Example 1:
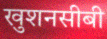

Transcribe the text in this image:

खुशनसीबी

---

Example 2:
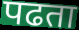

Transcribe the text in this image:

पढता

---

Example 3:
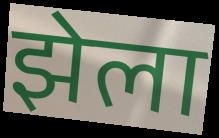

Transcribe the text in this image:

झेला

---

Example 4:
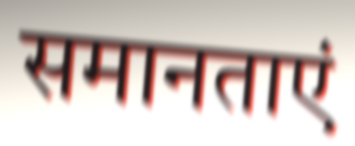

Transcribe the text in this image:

समानताएं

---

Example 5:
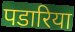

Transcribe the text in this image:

पडारिया